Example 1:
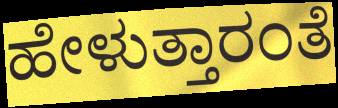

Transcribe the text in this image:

ಹೇಳುತ್ತಾರಂತೆ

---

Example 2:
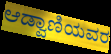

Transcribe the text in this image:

ಆಡ್ವಾಣಿಯವರ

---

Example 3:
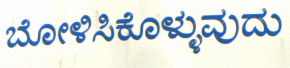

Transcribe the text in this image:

ಬೋಳಿಸಿಕೊಳ್ಳುವುದು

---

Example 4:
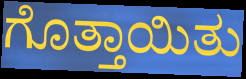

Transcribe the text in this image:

ಗೊತ್ತಾಯಿತು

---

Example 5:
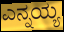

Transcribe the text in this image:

ಎನ್ನಯ್ಯ